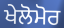
ਖੇਲੋਮੋਰ